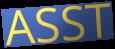
ASST